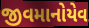
જીવમાનોયેવ